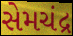
સેમચંદ્ર